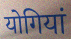
योगियां